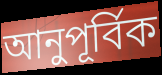
আনুপূর্বিক